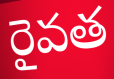
రైవత